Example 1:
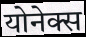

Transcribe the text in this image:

योनेक्स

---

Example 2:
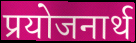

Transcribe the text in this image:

प्रयोजनार्थ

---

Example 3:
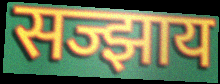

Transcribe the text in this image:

सज्झाय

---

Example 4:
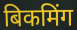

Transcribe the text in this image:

बिकमिंग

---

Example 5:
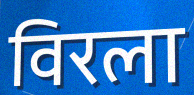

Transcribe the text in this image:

विरला